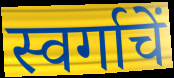
स्वर्गाचें